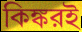
কিঙ্করই